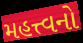
મહત્ત્વનો